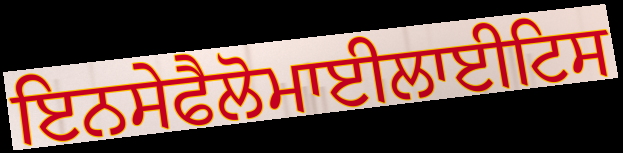
ਇਨਸੇਫੈਲੋਮਾਈਲਾਈਟਿਸ